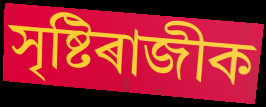
সৃষ্টিৰাজীক